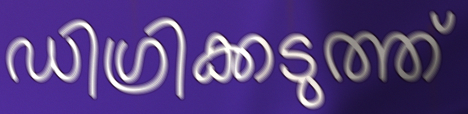
ഡിഗ്രിക്കടുത്ത്